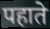
पहाते